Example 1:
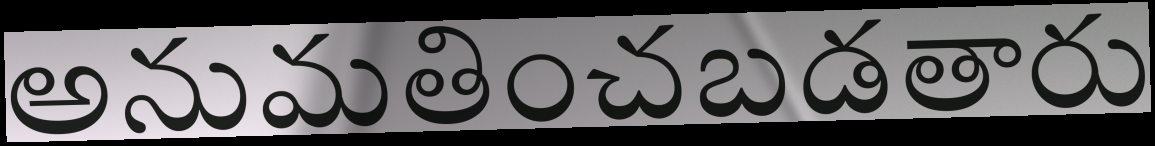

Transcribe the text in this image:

అనుమతించబడతారు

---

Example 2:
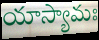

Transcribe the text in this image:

యాస్యామః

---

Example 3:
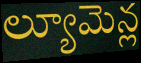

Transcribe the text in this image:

ల్యూమెన్ల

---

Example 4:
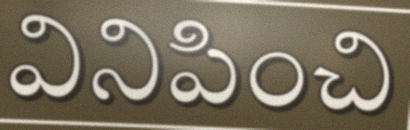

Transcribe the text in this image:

వినిపించి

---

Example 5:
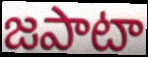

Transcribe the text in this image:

జపాటా